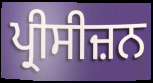
ਪ੍ਰੀਸੀਜ਼ਨ